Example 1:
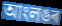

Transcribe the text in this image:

আংলঙৰ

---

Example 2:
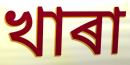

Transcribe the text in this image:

খাৰা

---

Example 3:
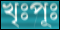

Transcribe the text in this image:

খৃঃপূঃ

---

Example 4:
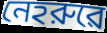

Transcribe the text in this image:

নেহৰুৱে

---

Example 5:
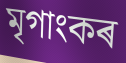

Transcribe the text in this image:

মৃগাংকৰ